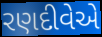
રણદીવેએ